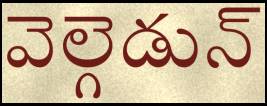
వెల్గెడున్